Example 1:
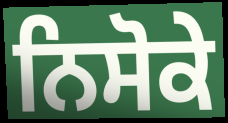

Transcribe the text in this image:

ਨਿਸੋਕੇ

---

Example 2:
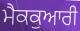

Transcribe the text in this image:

ਮੈਕਕੁਆਰੀ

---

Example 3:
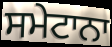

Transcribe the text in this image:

ਸਮੇਟਾਨਾ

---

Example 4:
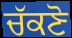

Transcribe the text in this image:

ਚੱਕਣੋ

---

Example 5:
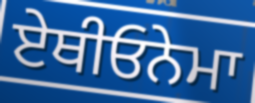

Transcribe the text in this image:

ਏਥੀਓਨੇਮਾ